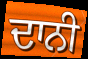
ਦਾਨੀ